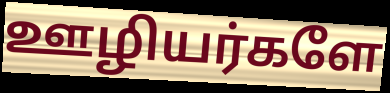
ஊழியர்களே